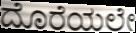
ದೊರೆಯಲೇ